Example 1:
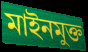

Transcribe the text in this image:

মাইনমুক্ত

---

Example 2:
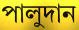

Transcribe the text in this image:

পালুদান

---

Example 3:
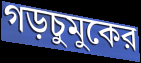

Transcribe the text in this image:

গড়চুমুকের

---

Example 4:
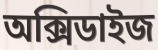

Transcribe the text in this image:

অক্সিডাইজ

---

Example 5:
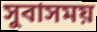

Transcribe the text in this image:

সুবাসময়